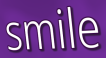
smile